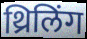
थ्रिलिंग